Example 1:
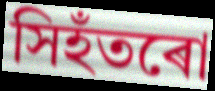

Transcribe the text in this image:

সিহঁতৰো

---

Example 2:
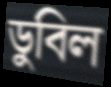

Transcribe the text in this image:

ডুবিল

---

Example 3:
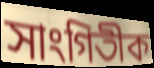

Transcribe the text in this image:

সাংগিতীক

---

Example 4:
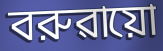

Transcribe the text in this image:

বৰুৱায়ো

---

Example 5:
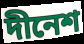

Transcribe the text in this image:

দীনেশ